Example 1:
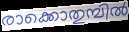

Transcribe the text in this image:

രാക്കൊതുമ്പിൽ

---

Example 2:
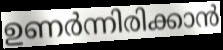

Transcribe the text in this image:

ഉണർന്നിരിക്കാൻ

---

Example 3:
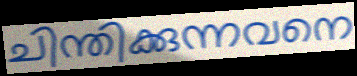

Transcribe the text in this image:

ചിന്തിക്കുന്നവനെ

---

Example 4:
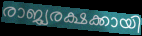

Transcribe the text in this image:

രാജ്യരക്ഷക്കായി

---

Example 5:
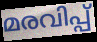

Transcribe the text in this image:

മരവിപ്പ്